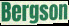
Bergson